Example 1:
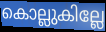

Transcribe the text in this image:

കൊല്ലുകില്ലേ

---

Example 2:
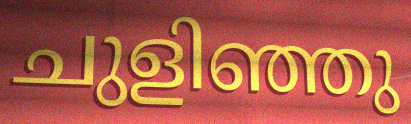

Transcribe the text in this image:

ചുളിഞ്ഞു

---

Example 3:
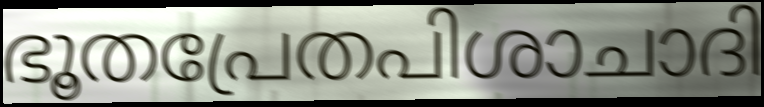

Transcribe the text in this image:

ഭൂതപ്രേതപിശാചാദി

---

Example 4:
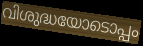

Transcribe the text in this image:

വിശുദ്ധയോടൊപ്പം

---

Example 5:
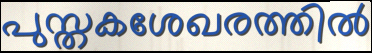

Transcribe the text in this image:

പുസ്തകശേഖരത്തിൽ